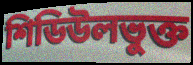
শিডিউলভুক্ত